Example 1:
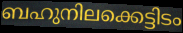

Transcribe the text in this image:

ബഹുനിലക്കെട്ടിടം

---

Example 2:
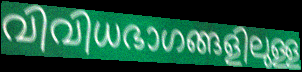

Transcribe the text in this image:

വിവിധഭാഗങ്ങളിലുള്ള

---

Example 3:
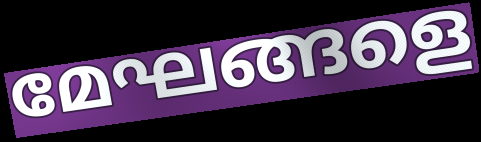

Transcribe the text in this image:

മേഘങ്ങളെ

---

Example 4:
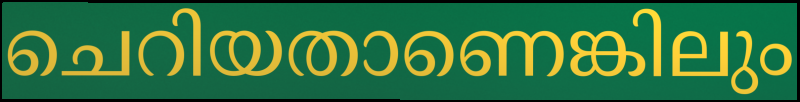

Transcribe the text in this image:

ചെറിയതാണെങ്കിലും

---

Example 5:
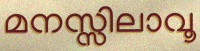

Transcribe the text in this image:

മനസ്സിലാവൂ